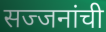
सज्जनांची